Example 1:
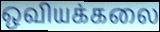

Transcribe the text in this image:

ஒவியக்கலை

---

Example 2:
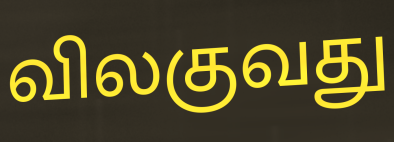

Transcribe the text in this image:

விலகுவது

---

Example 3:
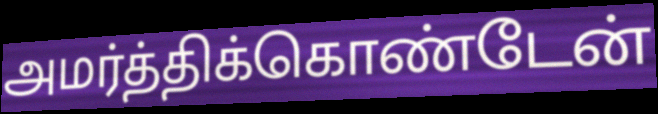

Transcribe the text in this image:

அமர்த்திக்கொண்டேன்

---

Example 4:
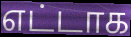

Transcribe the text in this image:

எட்டாக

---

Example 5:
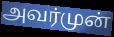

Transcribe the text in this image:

அவர்முன்